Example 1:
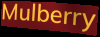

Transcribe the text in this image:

Mulberry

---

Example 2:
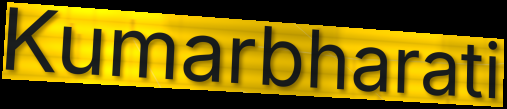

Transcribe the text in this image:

Kumarbharati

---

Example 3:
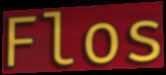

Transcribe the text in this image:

Flos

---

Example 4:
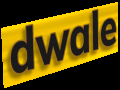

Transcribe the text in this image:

dwale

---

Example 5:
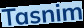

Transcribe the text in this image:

Tasnim